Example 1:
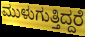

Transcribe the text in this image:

ಮುಳುಗುತ್ತಿದ್ದರೆ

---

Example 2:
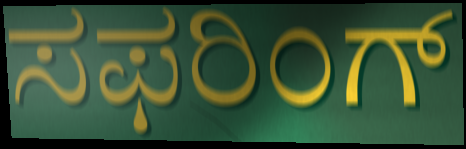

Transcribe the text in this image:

ಸಫರಿಂಗ್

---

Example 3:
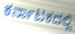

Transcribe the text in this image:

ಕರ್ನಾಟಕದಲ್ಲಿ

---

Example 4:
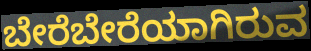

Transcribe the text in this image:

ಬೇರೆಬೇರೆಯಾಗಿರುವ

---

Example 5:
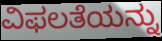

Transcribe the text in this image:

ವಿಫಲತೆಯನ್ನು